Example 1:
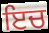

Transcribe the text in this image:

ਇਚ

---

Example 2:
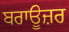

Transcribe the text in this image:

ਬਰਾਊਜ਼ਰ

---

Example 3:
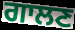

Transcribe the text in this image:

ਗਾਲਣ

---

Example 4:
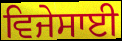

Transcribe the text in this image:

ਵਿਜੇਸਾਈ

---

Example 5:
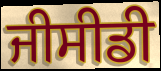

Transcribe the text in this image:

ਜੀਸੀਡੀ